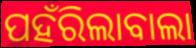
ପହଁରିଲାବାଲା